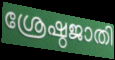
ശ്രേഷ്ഠജാതി